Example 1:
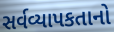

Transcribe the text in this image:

સર્વવ્યાપકતાનો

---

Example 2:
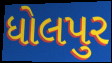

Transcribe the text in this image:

ધોલપુર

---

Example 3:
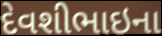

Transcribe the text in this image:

દેવશીભાઇના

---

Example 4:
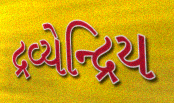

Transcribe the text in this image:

દ્રવ્યેન્દ્રિય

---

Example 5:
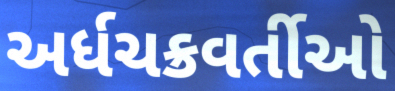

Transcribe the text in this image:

અર્ધચક્રવર્તીઓ